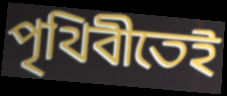
পৃথিবীতেই